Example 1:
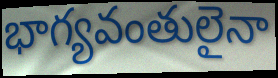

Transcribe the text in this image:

భాగ్యవంతులైనా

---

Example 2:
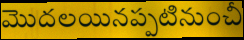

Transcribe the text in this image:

మొదలయినప్పటినుంచీ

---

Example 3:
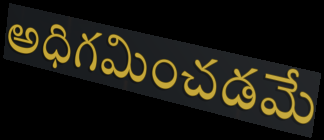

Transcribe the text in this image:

అధిగమించడమే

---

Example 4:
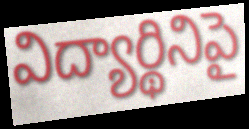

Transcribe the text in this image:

విద్యార్థినిపై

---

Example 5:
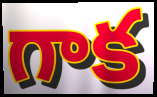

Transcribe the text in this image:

గాక